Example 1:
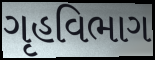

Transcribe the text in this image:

ગૃહવિભાગ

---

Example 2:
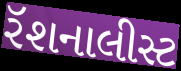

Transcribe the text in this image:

રૅશનાલીસ્ટ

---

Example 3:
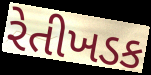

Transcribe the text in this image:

રેતીખડક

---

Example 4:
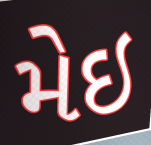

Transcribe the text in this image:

મેઇ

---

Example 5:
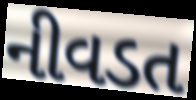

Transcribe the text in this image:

નીવડત